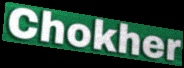
Chokher